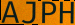
AJPH